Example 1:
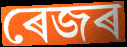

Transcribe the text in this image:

ৰেজৰ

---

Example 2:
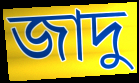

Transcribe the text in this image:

জাদু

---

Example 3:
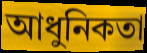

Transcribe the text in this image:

আধুনিকতা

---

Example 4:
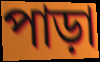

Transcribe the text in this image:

পাড়া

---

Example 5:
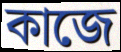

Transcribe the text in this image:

কাজে